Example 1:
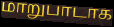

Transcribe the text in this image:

மாறுபாடாக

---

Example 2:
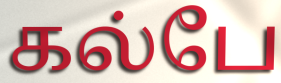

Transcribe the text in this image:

கல்பே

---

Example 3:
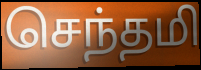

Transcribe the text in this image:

செந்தமி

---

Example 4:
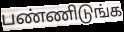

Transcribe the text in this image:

பண்ணிடுங்க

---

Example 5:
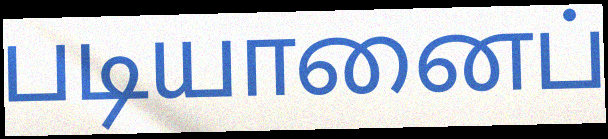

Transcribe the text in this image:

படியானைப்